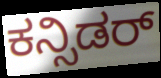
ಕನ್ಸಿಡರ್